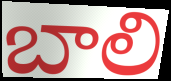
బాలి